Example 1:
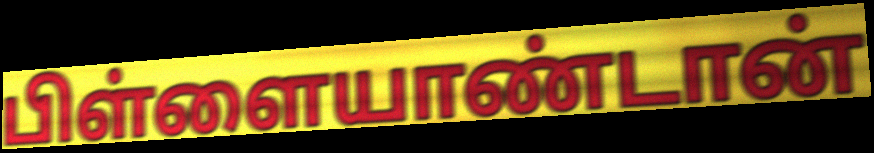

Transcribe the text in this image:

பிள்ளையாண்டான்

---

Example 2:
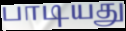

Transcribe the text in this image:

பாடியது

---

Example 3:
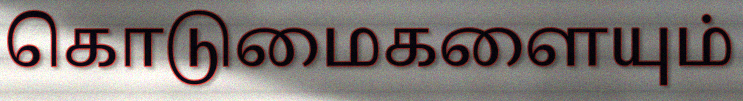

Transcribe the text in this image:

கொடுமைகளையும்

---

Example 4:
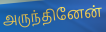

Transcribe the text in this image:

அருந்தினேன்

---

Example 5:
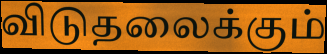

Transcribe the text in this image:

விடுதலைக்கும்